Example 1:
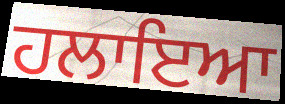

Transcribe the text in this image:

ਹਲਾਇਆ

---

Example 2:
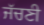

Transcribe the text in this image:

ਜੱਚਣੀ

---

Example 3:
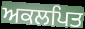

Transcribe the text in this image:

ਅਕਲਪਿਤ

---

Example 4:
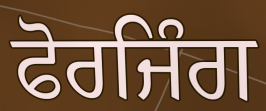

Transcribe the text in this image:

ਫੋਰਜਿੰਗ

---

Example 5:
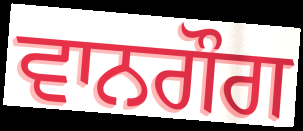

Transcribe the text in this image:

ਵਾਨਗੌਗ